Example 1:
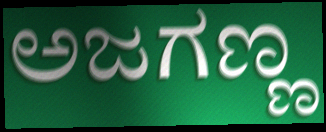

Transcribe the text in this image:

ಅಜಗಣ್ಣ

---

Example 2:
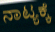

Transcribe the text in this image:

ನಾಟ್ಯಕ್ಕೆ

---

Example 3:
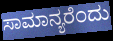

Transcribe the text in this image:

ಸಾಮಾನ್ಯರೆಂದು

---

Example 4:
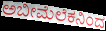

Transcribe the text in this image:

ಅಬೀಮೆಲೆಕನಿಂದ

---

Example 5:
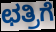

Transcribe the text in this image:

ಛತ್ರಿಗೆ